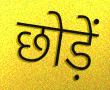
छोड़ें